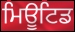
ਮਿਊਟਿਡ